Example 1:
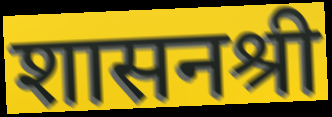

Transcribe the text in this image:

शासनश्री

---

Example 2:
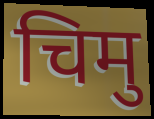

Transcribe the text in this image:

चिमु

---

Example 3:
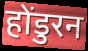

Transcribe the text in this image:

होंडुरन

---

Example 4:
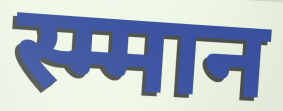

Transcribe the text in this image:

स्म्मान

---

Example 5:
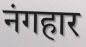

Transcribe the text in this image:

नंगहार